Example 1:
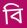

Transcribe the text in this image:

বি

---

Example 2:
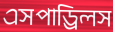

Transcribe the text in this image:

এসপাড্রিলস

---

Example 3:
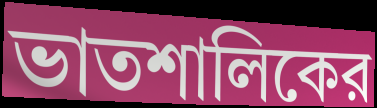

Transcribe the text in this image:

ভাতশালিকের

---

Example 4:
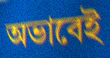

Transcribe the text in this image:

অভাবেই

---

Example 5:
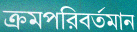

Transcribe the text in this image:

ক্রমপরিবর্তমান